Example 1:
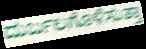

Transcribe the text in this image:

ದುರ್ಬಲಗೊಳಿಸುತ್ತಾ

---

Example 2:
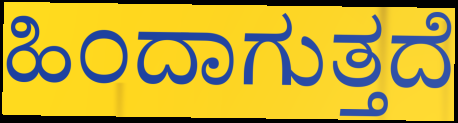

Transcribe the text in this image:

ಹಿಂದಾಗುತ್ತದೆ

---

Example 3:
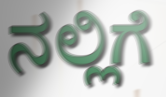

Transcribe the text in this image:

ನಲ್ಲಿಗೆ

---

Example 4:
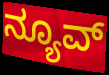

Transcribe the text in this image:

ನ್ಯೂವ್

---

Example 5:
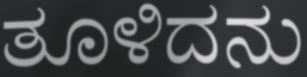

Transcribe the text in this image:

ತೂಳಿದನು